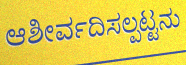
ಆಶೀರ್ವದಿಸಲ್ಪಟ್ಟನು